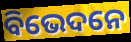
ବିଭେଦନେ